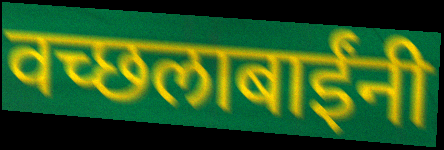
वच्छलाबाईंनी